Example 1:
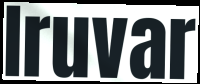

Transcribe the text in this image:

Iruvar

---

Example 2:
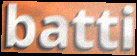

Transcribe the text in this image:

batti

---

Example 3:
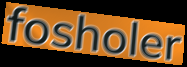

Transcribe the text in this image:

fosholer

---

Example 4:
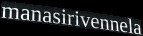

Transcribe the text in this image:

manasirivennela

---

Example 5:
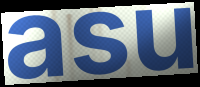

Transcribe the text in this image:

asu